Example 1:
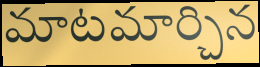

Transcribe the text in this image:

మాటమార్చిన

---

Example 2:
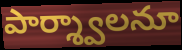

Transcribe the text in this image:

పార్శ్వాలనూ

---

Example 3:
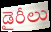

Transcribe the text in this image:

డైరీలు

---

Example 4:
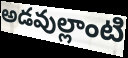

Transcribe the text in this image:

అడవుల్లాంటి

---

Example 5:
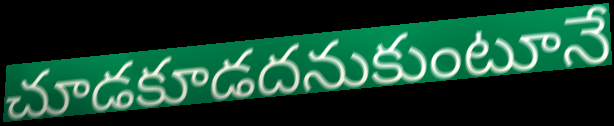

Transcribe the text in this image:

చూడకూడదనుకుంటూనే